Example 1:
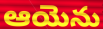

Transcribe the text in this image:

ఆయెను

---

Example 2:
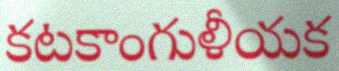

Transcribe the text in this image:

కటకాంగుళీయక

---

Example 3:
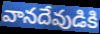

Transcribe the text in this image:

వానదేవుడికి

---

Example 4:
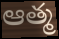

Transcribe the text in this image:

ఆత్మ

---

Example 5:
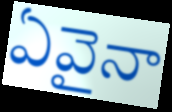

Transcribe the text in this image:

ఏవైనా